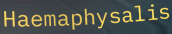
Haemaphysalis